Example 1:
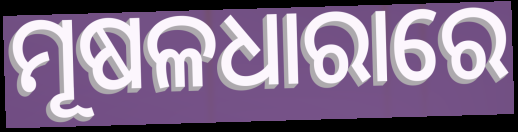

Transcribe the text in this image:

ମୂଷଳଧାରାରେ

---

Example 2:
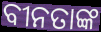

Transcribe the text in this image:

ବୀନତାଙ୍କ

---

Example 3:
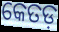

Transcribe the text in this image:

କେତଡ଼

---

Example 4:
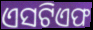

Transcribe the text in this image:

ଏସଟିଏଫ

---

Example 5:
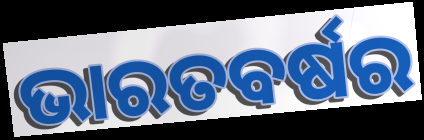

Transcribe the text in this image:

ଭାରତବର୍ଷର